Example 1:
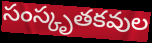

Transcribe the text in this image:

సంస్కృతకవుల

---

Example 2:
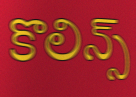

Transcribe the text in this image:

కొలిన్స్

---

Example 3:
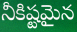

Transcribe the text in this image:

నీకిష్టమైన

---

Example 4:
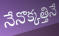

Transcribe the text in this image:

నేనొక్కత్తినే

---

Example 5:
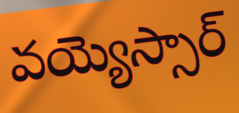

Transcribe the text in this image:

వయ్యెస్సార్